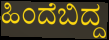
ಹಿಂದೆಬಿದ್ದ